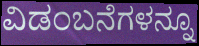
ವಿಡಂಬನೆಗಳನ್ನೂ